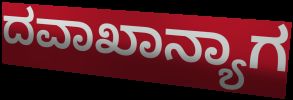
ದವಾಖಾನ್ಯಾಗ